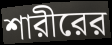
শারীরের